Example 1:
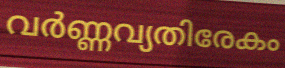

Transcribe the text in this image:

വർണ്ണവ്യതിരേകം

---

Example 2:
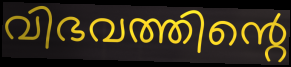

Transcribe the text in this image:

വിഭവത്തിന്റെ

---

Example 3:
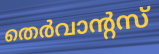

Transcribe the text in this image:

തെർവാന്റസ്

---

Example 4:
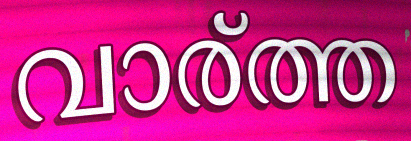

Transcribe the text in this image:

വാര്ത്ത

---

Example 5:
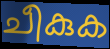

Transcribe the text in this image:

ചീകുക